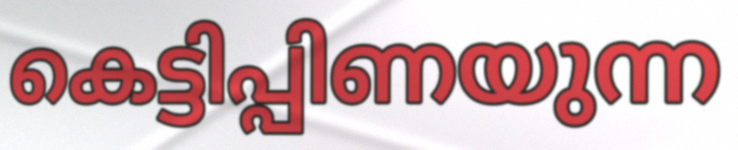
കെട്ടിപ്പിണയുന്ന